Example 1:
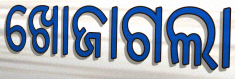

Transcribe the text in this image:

ଖୋଜାଗଲା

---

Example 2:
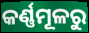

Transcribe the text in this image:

କର୍ଣ୍ଣମୂଳରୁ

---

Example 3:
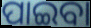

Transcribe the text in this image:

ପାଇବା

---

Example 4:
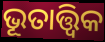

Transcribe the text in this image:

ଭୂତାତ୍ତ୍ୱିକ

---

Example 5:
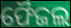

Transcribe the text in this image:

ଫୈଜଲ